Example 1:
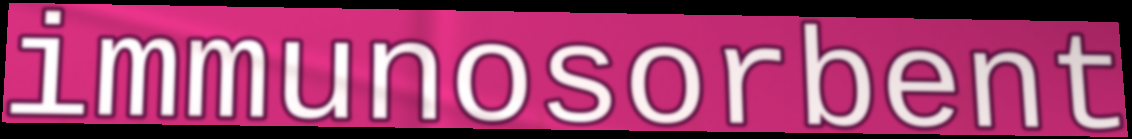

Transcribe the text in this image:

immunosorbent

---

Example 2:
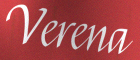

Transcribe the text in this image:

Verena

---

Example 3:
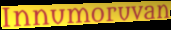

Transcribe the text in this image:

Innumoruvan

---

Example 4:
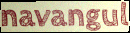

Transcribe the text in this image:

navangul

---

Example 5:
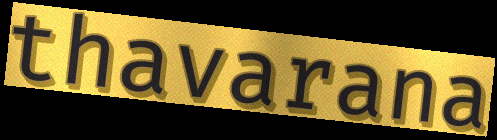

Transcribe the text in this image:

thavarana